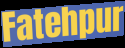
Fatehpur